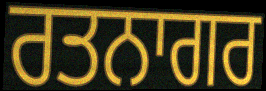
ਰਤਨਾਗਰ